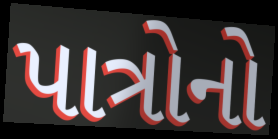
પાત્રોનો